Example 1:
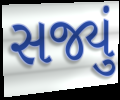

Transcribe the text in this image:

સજ્યું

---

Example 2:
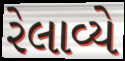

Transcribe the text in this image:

રેલાવ્યે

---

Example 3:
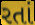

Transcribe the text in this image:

રતાં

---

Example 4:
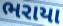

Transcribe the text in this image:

ભરાયા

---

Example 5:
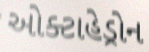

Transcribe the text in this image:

ઓક્ટાહેડ્રોન